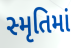
સ્મૃતિમાં